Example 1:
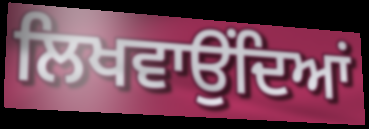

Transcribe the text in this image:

ਲਿਖਵਾਉਂਦਿਆਂ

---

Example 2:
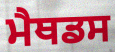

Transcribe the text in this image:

ਮੈਥਡਸ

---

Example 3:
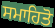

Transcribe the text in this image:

ਸਮਾਹਿਤੋ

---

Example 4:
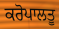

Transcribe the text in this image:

ਕਰੋਪਾਲਤੂ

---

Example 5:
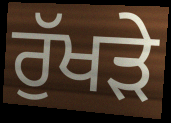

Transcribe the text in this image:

ਰੁੱਖੜੇ